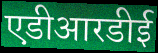
एडीआरडीई